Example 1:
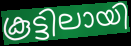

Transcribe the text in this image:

കൂട്ടിലായി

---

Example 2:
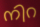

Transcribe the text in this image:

നിറ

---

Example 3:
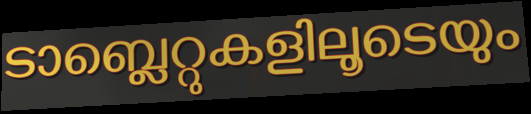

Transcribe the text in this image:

ടാബ്ലെറ്റുകളിലൂടെയും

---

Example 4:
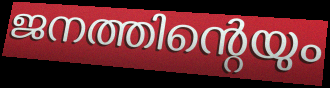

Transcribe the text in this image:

ജനത്തിന്റെയും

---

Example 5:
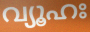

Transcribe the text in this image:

വ്യൂഹഃ